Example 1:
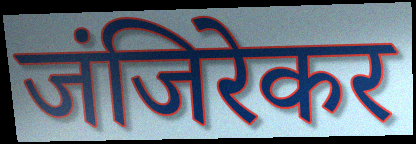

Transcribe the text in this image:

जंजिरेकर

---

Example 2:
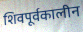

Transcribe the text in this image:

शिवपूर्वकालीन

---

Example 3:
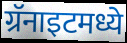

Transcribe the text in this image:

ग्रॅनाइटमध्ये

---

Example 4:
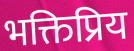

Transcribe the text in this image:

भक्तिप्रिय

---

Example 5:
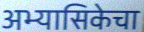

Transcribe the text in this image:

अभ्यासिकेचा